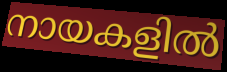
നായകളിൽ